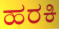
ಹರಕಿ